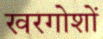
खरगोशों